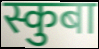
स्कुबा